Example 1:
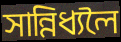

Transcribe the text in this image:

সান্নিধ্যলৈ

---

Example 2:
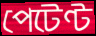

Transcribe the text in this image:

পেটেণ্ট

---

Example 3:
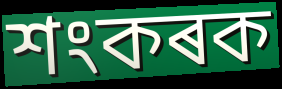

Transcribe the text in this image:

শংকৰক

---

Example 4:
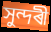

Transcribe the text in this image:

সুন্দৰী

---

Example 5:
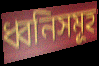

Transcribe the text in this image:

ধ্বনিসমূহ